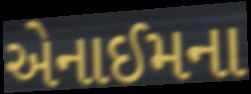
એનાઈમના